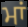
ਮਾਂ